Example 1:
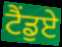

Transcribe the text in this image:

ਟੈਂਡੁਏ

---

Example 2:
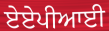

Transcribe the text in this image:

ਏਏਪੀਆਈ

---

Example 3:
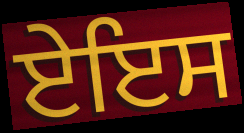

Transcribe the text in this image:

ਏਇਸ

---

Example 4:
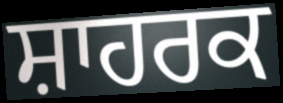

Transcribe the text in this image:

ਸ਼ਾਹਰਕ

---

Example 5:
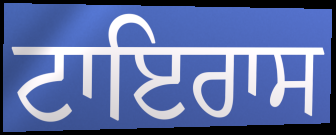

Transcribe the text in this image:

ਟਾਇਰਾਸ